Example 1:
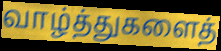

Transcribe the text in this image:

வாழ்த்துகளைத்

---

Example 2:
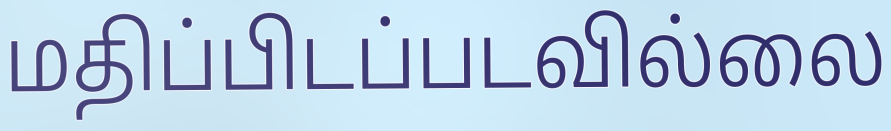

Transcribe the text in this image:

மதிப்பிடப்படவில்லை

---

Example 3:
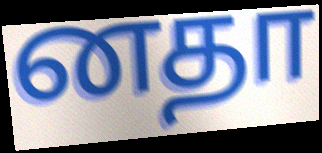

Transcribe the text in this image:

னதா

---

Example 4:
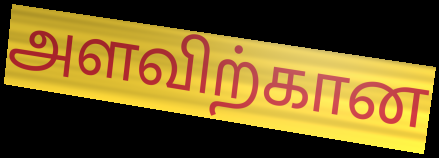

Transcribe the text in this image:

அளவிற்கான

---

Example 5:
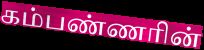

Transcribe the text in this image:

கம்பண்ணரின்